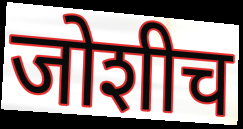
जोशीच